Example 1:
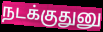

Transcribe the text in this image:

நடக்குதுனு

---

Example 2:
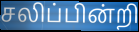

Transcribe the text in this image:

சலிப்பின்றி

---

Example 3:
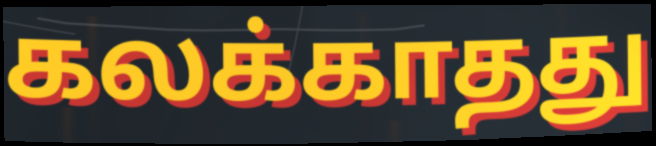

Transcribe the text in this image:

கலக்காதது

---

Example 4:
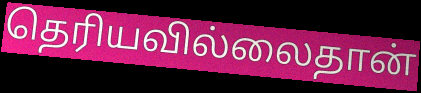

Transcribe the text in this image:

தெரியவில்லைதான்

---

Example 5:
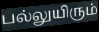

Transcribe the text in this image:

பல்லுயிரும்